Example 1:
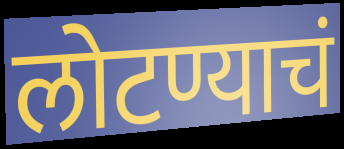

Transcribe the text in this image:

लोटण्याचं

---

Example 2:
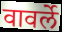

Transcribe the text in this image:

वावर्ले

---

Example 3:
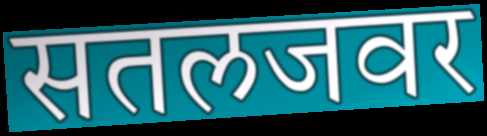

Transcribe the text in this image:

सतलजवर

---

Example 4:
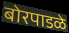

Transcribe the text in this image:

बोरपाडळे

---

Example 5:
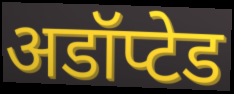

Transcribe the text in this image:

अडॉप्टेड